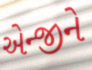
એન્જીને